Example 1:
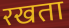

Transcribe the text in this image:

रखता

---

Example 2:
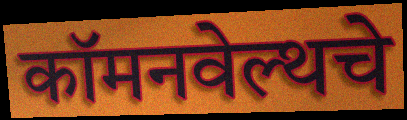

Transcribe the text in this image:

कॉमनवेल्थचे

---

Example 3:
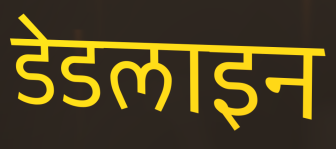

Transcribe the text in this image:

डेडलाइन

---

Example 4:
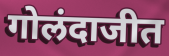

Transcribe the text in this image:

गोलंदाजीत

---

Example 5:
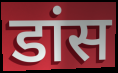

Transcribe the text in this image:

डांस